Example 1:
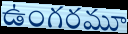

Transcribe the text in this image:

ఉంగరమూ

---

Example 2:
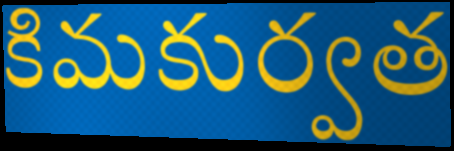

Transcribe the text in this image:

కిమకుర్వత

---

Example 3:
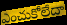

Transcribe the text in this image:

ఎంచుకోలేదా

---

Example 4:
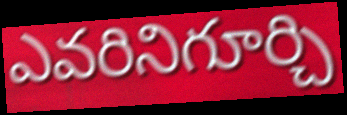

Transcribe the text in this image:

ఎవరినిగూర్చి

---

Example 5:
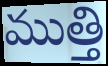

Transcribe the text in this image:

ముత్తి